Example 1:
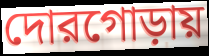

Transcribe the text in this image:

দোরগোড়ায়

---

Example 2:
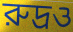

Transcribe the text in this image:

রুদ্রও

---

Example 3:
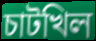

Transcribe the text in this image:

চাটখিল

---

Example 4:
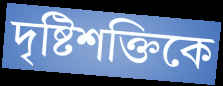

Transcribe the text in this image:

দৃষ্টিশক্তিকে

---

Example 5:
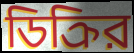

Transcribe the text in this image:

ডিক্রির